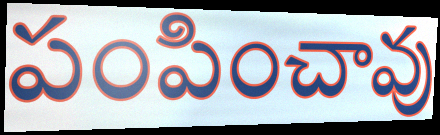
పంపించావు